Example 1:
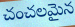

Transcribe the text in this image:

చంచలమైన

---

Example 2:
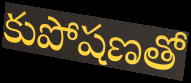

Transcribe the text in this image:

కుపోషణతో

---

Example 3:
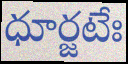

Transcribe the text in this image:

ధూర్జటేః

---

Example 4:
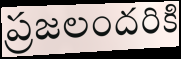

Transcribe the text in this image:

ప్రజలందరికి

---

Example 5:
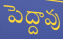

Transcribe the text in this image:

పెద్దావు